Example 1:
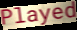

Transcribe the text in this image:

Played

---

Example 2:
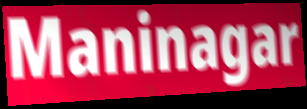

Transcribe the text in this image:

Maninagar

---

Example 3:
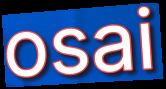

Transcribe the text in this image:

osai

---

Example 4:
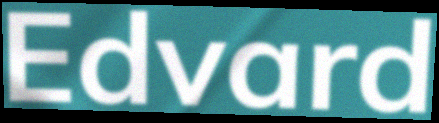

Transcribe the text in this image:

Edvard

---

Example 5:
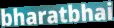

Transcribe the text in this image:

bharatbhai